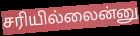
சரியில்லைன்னு